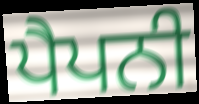
ਪੈਪਨੀ